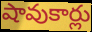
షావుకార్లు